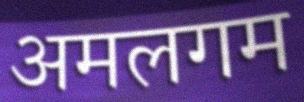
अमलगम